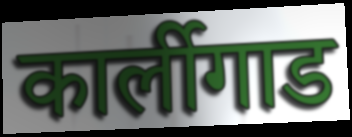
कार्लीगाड